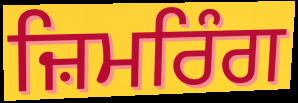
ਜ਼ਿਮਰਿੰਗ